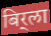
बिर्ला